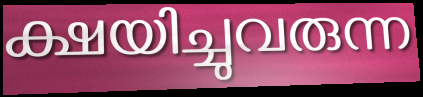
ക്ഷയിച്ചുവരുന്ന